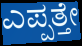
ಎಪ್ಪತ್ತೇ